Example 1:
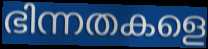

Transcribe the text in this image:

ഭിന്നതകളെ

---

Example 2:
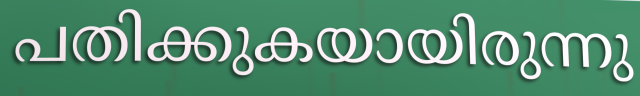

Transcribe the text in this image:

പതിക്കുകയായിരുന്നു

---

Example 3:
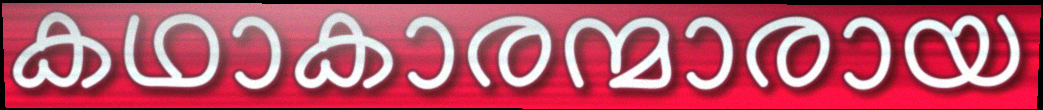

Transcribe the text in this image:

കഥാകാരന്മാരായ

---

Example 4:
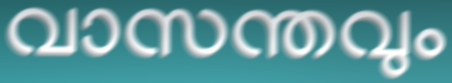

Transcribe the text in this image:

വാസന്തവും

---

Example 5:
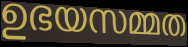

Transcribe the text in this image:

ഉഭയസമ്മത